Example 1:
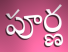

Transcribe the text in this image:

పూర్ణ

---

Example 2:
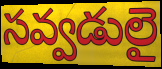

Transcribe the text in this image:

సవ్వడులై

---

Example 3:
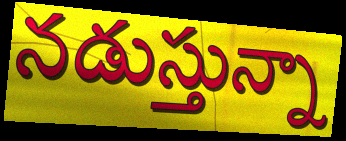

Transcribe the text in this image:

నడుస్తున్నా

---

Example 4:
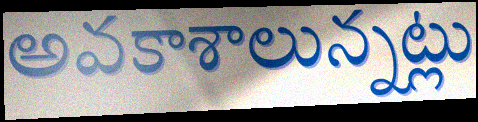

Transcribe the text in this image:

అవకాశాలున్నట్లు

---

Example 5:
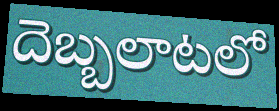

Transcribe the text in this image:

దెబ్బలాటలో